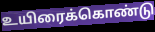
உயிரைக்கொண்டு